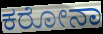
ಕರೋನಾ